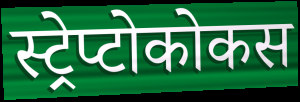
स्ट्रेप्टोकोकस